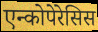
एन्कोपेरेसिस